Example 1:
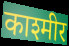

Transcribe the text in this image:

काश्मीर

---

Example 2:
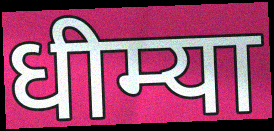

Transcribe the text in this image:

धीम्या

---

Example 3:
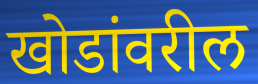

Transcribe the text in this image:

खोडांवरील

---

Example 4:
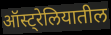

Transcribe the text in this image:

ऑस्ट्रेलियातील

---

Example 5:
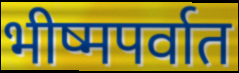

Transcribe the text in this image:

भीष्मपर्वात